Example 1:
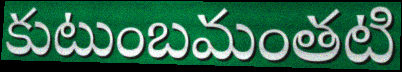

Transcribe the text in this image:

కుటుంబమంతటి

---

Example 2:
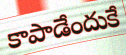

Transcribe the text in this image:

కాపాడేందుకే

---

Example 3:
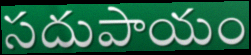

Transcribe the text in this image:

సదుపాయం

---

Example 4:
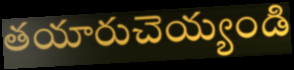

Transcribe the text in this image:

తయారుచెయ్యండి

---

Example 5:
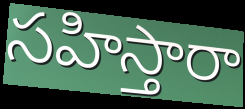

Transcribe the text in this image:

సహిస్తారా